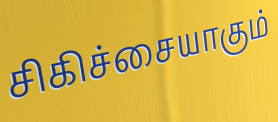
சிகிச்சையாகும்